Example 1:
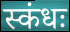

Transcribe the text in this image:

स्कंधः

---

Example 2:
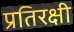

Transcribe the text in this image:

प्रतिरक्षी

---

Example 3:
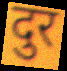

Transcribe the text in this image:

दुर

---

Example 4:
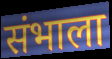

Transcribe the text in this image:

संभाला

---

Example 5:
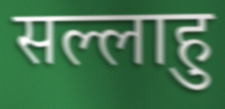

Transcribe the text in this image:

सल्लाहु